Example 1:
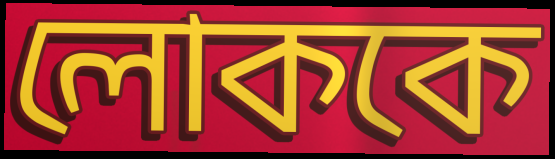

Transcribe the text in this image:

লোককে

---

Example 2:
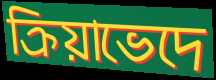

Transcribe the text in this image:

ক্রিয়াভেদে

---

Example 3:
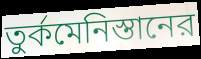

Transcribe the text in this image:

তুর্কমেনিস্তানের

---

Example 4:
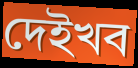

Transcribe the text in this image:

দেইখব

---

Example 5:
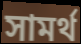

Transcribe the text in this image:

সামর্থ